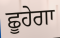
ਛੂਹੇਗਾ